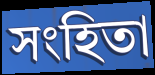
সংহিতা